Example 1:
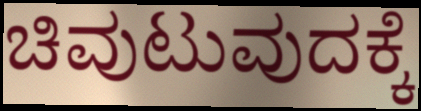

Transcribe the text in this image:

ಚಿವುಟುವುದಕ್ಕೆ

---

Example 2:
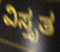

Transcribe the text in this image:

ವಿಸ್ತೃತ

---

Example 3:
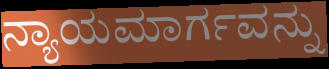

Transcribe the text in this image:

ನ್ಯಾಯಮಾರ್ಗವನ್ನು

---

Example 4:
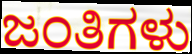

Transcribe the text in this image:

ಜಂತಿಗಳು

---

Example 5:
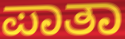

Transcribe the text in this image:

ಪಾತಾ